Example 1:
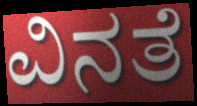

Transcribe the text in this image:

ವಿನತೆ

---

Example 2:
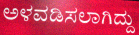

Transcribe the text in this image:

ಅಳವಡಿಸಲಾಗಿದ್ದು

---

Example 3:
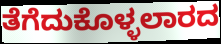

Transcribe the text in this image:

ತೆಗೆದುಕೊಳ್ಳಲಾರದ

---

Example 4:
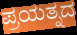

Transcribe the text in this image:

ಪ್ರಯತ್ನದ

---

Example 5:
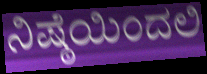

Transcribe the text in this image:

ನಿಷ್ಠೆಯಿಂದಲಿ